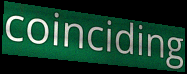
coinciding